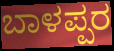
ಬಾಳಪ್ಪರ